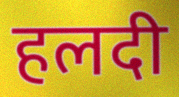
हलदी